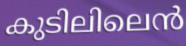
കുടിലിലെൻ